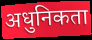
अधुनिकता